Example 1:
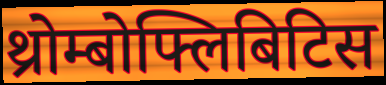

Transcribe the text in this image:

थ्रोम्बोफ्लिबिटिस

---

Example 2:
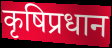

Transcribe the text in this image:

कृषिप्रधान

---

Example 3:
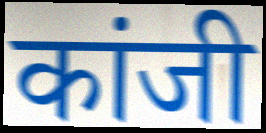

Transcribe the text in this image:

कांजी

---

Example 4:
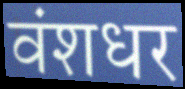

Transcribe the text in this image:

वंशधर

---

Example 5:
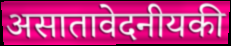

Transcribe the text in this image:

असातावेदनीयकी